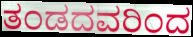
ತಂಡದವರಿಂದ